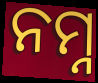
ନମ୍ନ